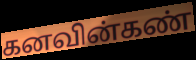
கனவின்கண்